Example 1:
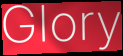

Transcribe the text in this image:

Glory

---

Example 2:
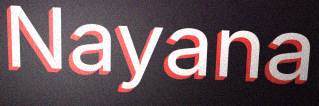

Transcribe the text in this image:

Nayana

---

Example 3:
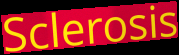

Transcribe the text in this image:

Sclerosis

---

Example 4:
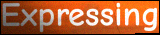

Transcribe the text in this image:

Expressing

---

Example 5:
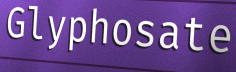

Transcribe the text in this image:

Glyphosate